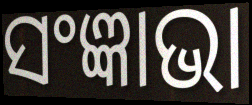
ସଂଜ୍ଞାଭା